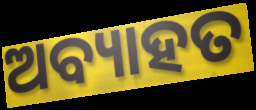
ଅବ୍ୟାହତ